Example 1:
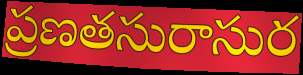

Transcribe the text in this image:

ప్రణతసురాసుర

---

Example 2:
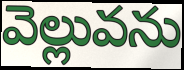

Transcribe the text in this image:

వెల్లువను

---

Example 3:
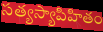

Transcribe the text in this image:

సత్యస్యాపిహితం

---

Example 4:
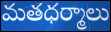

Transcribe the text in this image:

మతధర్మాలు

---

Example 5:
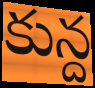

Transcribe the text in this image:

కున్ద